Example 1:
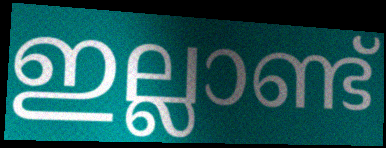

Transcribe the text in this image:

ഇല്ലാണ്ട്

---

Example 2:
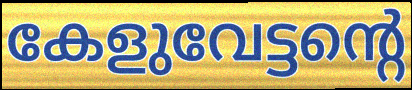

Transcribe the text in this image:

കേളുവേട്ടന്റെ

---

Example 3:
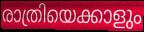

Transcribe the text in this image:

രാത്രിയെക്കാളും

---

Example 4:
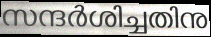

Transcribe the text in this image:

സന്ദർശിച്ചതിനു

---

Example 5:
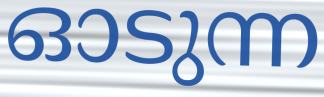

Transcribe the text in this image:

ഓടുന്ന